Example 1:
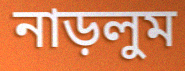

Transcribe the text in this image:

নাড়লুম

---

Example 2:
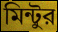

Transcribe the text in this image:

মিন্টুর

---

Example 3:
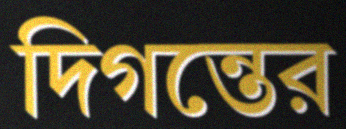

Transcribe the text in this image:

দিগন্তের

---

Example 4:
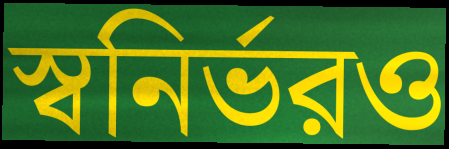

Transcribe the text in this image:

স্বনির্ভরও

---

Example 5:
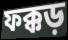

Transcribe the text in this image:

ফক্কড়